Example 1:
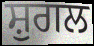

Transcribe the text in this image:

ਸ਼ੁਗਲ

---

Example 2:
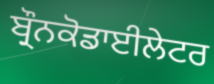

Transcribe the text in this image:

ਬ੍ਰੌਨਕੋਡਾਈਲੇਟਰ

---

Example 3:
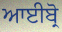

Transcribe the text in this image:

ਆਈਬ੍ਰੋ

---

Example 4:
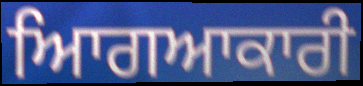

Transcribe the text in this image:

ਆਿਗਆਕਾਰੀ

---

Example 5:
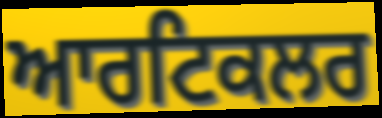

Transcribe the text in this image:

ਆਰਟਿਕਲਰ